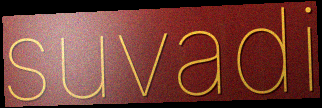
suvadi